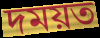
দময়ত